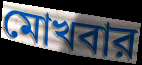
মোখবার